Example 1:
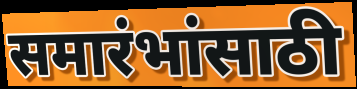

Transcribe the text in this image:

समारंभांसाठी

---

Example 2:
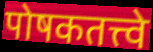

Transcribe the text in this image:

पोषकतत्त्वे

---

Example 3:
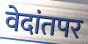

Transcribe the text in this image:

वेदांतपर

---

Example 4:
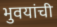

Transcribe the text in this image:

भुवयांची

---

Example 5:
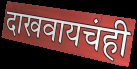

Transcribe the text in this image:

दाखवायचंही